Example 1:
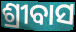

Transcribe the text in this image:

ଶ୍ରୀବାସ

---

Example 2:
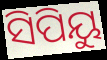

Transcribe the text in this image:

ସିପିୟୁ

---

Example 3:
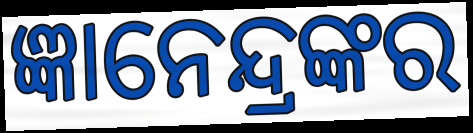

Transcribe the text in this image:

ଜ୍ଞାନେନ୍ଦ୍ରଙ୍କର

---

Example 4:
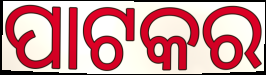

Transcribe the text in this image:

ପାଟକର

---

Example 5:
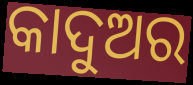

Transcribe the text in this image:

କାଦୁଅର